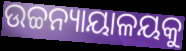
ଉଚ୍ଚନ୍ୟାୟାଳୟକୁ